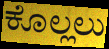
ಕೊಲ್ಲಲು